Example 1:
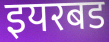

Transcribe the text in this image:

इयरबड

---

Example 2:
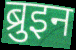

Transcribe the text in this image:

ब्रुइन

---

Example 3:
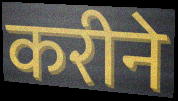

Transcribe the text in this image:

करीने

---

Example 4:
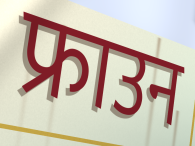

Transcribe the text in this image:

फ्राउन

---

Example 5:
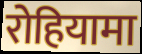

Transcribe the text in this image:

रोहियामा